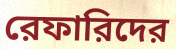
রেফারিদের